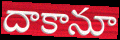
దాకానూ